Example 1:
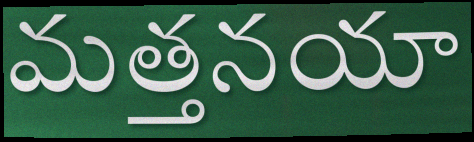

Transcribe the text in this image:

మత్తనయా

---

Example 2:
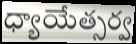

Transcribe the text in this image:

ధ్యాయేత్సర్వ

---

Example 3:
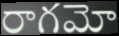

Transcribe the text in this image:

రాగమో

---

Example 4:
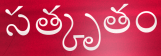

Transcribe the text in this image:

సత్కృతం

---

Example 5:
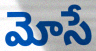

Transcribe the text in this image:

మోసే